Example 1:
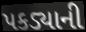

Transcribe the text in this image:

પકડ્યાની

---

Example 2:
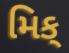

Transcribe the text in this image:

મિક્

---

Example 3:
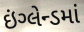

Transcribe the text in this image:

ઇંગ્લેન્ડમાં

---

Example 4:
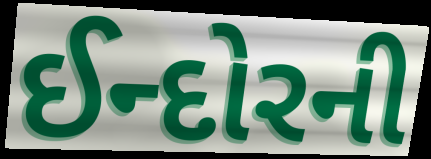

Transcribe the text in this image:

ઈન્દોરની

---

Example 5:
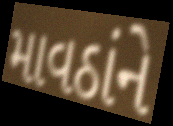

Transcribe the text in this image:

માવઠાંને